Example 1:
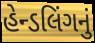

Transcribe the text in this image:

હેન્ડલિંગનું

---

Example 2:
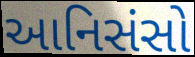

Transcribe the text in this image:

આનિસંસો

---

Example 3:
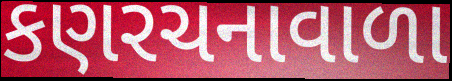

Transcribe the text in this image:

કણરચનાવાળા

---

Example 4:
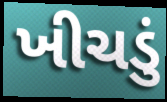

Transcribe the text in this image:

ખીચડું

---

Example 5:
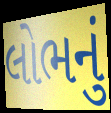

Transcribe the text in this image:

લોભનું